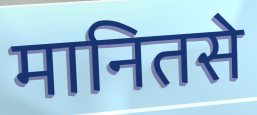
मानितसे